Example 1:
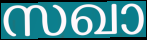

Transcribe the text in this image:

സഖാ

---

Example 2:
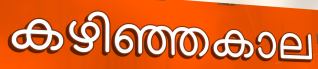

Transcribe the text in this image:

കഴിഞ്ഞകാല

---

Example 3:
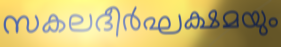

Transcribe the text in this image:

സകലദീർഘക്ഷമയും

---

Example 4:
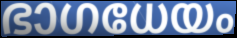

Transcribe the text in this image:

ഭാഗധേയം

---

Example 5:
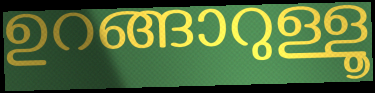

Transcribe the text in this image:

ഉറങ്ങാറുള്ളൂ